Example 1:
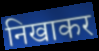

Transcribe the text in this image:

निखाकर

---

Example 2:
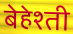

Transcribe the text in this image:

बेहेश्ती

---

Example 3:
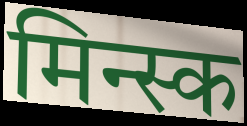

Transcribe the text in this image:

मिन्स्क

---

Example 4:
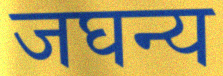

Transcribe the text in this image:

जघन्‍य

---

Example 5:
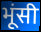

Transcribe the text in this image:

भूंसी